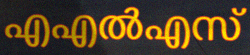
എഎൽഎസ്